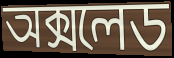
অক্সলেড